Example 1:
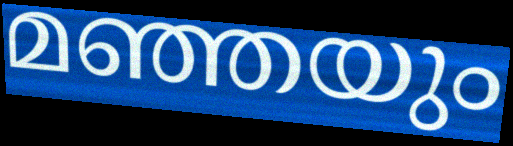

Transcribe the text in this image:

മഞ്ഞയും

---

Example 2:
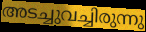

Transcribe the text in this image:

അടച്ചുവച്ചിരുന്നു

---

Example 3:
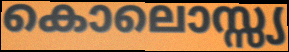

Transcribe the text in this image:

കൊലൊസ്സ്യ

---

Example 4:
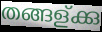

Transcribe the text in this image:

തങ്ങള്ക്കു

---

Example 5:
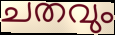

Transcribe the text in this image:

ചതവും